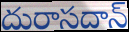
దురాసదాన్